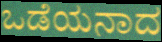
ಒಡೆಯನಾದ